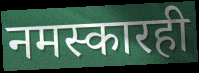
नमस्कारही